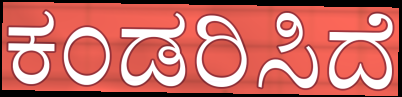
ಕಂಡರಿಸಿದೆ